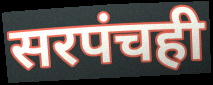
सरपंचही